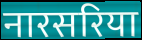
नारसरिया